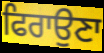
ਫਿਰਾਉਣਾ